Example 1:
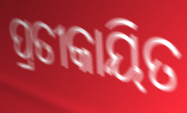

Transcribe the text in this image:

ପ୍ରତୀକାୟିତ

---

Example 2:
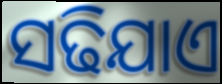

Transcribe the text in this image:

ସଢିଯାଏ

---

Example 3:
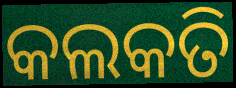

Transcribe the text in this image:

କଲକତି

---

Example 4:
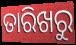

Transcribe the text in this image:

ତାରିଖରୁ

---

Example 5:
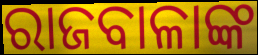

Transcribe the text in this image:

ରାଜବାଳାଙ୍କ